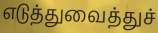
எடுத்துவைத்துச்